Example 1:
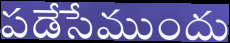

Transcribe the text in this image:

పడేసేముందు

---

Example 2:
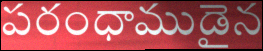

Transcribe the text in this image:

పరంధాముడైన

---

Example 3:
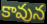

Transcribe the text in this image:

కావున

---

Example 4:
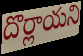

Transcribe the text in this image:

దొర్లాయని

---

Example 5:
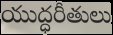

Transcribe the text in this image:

యుద్ధరీతులు